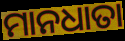
ମାନଧାତା